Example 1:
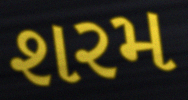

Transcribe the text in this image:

શરમ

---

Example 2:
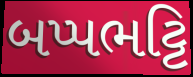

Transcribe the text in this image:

બપ્પભટ્ટિ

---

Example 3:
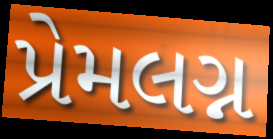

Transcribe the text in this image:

પ્રેમલગ્ન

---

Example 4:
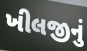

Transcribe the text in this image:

ખીલજીનું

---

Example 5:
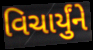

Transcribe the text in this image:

વિચાર્યુંને